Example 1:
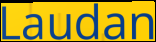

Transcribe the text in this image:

Laudan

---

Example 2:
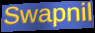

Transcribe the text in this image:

Swapnil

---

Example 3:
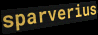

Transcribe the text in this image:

sparverius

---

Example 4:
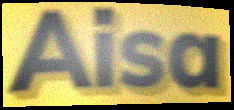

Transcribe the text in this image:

Aisa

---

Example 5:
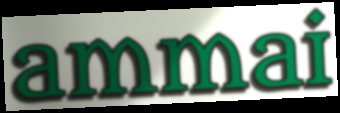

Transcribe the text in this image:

ammai